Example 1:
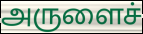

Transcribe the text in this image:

அருளைச்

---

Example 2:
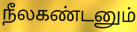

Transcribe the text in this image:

நீலகண்டனும்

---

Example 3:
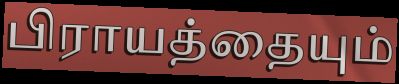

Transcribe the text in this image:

பிராயத்தையும்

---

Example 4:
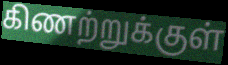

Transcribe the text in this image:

கிணற்றுக்குள்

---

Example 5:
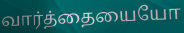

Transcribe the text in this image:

வார்த்தையையோ